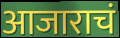
आजाराचं